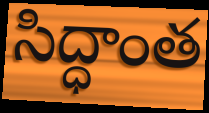
సిద్ధాంత